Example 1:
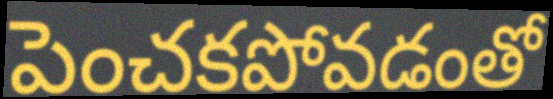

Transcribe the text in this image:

పెంచకపోవడంతో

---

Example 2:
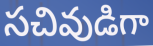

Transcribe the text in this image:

సచివుడిగా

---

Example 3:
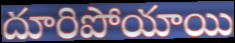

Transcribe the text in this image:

దూరిపోయాయి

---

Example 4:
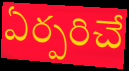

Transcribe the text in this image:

ఏర్పరిచే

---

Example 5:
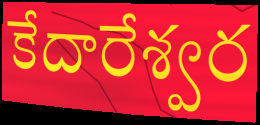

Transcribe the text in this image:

కేదారేశ్వర